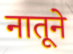
नातूने